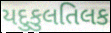
યદુકુલતિલક